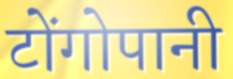
टोंगोपानी